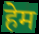
हेम